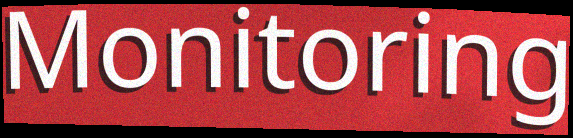
Monitoring